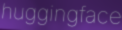
huggingface